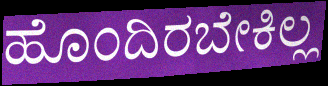
ಹೊಂದಿರಬೇಕಿಲ್ಲ